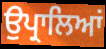
ਉਪ੍ਰਾਲਿਆਂ